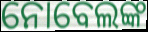
ନୋବେଲଙ୍କ